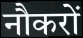
नौकरों